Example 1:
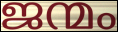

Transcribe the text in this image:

ജന്മം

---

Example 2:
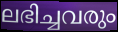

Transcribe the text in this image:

ലഭിച്ചവരും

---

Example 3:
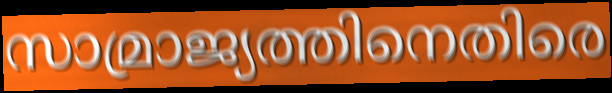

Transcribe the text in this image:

സാമ്രാജ്യത്തിനെതിരെ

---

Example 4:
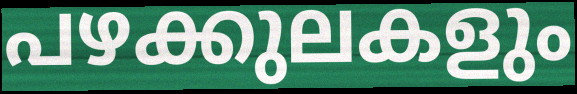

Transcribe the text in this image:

പഴക്കുലകളും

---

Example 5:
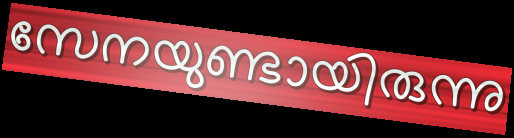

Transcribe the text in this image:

സേനയുണ്ടായിരുന്നു